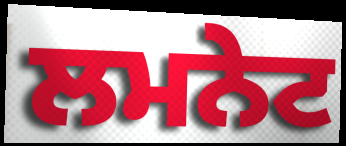
ਲਮਨੇਟ